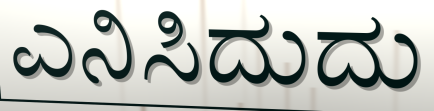
ಎನಿಸಿದುದು